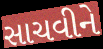
સાચવીને